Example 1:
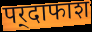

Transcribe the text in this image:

पर्दाफाश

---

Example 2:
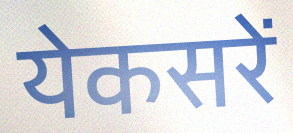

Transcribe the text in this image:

येकसरें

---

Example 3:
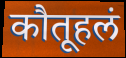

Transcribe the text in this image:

कौतूहलं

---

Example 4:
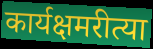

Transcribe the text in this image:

कार्यक्षमरीत्या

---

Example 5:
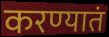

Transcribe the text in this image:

करण्यातं